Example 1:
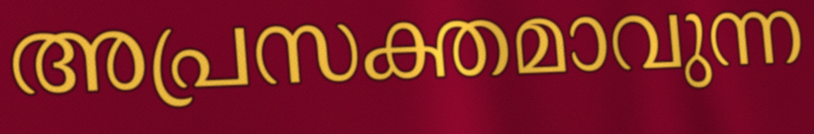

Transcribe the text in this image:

അപ്രസക്തമാവുന്ന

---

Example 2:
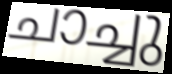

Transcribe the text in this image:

ചാച്ചു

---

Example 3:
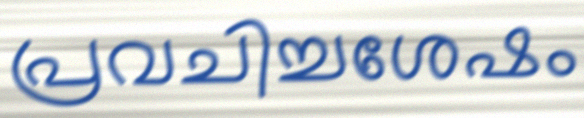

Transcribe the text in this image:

പ്രവചിച്ചശേഷം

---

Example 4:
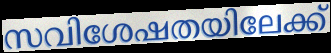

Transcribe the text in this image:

സവിശേഷതയിലേക്ക്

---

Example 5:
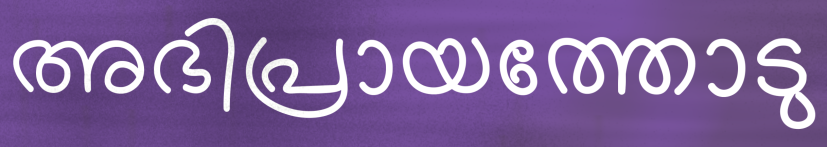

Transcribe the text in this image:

അഭിപ്രായത്തോടു